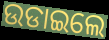
ଉଡାଇଲେ